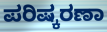
ಪರಿಷ್ಕರಣಾ